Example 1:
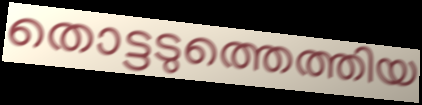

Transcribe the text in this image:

തൊട്ടടുത്തെത്തിയ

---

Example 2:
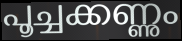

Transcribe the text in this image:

പൂച്ചക്കണ്ണും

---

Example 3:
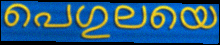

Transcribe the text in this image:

പെഗുലയെ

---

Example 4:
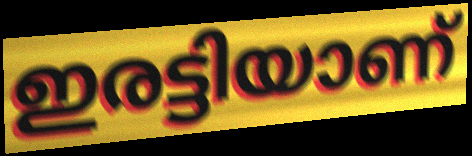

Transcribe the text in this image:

ഇരട്ടിയാണ്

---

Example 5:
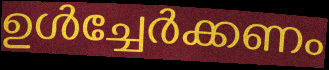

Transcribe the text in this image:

ഉൾച്ചേർക്കണം